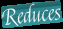
Reduces